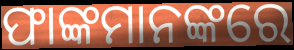
ଫାଙ୍କମାନଙ୍କରେ